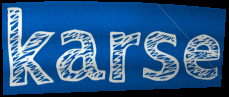
karse